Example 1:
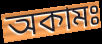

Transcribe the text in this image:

অকামঃ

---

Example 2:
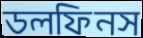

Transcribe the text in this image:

ডলফিনস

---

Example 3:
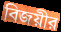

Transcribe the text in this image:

বিজয়ীর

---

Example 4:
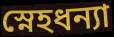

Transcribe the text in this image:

স্নেহধন্যা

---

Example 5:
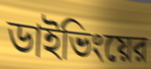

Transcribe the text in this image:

ডাইভিংয়ের